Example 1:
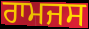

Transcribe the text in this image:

ਰਾਮਜਸ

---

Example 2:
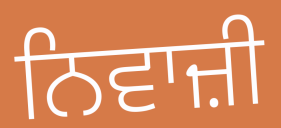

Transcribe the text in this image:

ਨਿਵਾਜ਼ੀ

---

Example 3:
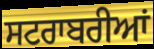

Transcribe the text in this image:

ਸਟਰਾਬਰੀਆਂ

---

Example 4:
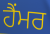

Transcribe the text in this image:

ਹੈਂਮਰ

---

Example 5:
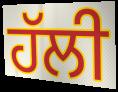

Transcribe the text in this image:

ਹੱਲੀ